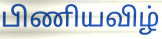
பிணியவிழ்